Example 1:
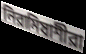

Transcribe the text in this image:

নিরামিষাশীরা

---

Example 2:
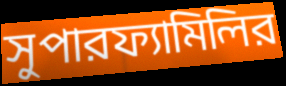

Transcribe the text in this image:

সুপারফ্যামিলির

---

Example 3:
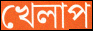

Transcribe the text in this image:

খেলাপ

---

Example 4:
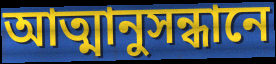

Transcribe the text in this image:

আত্মানুসন্ধানে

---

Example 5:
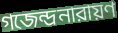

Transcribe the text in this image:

গজেন্দ্রনারায়ণ